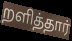
றளித்தார்